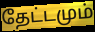
தேட்டமும்